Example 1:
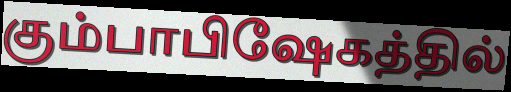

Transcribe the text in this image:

கும்பாபிஷேகத்தில்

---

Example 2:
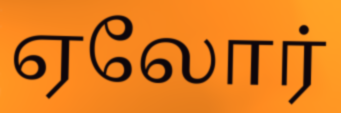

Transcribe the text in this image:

ஏலோர்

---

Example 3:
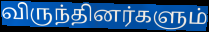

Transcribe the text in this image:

விருந்தினர்களும்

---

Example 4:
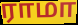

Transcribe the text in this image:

ராமா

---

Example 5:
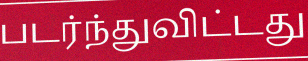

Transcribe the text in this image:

படர்ந்துவிட்டது